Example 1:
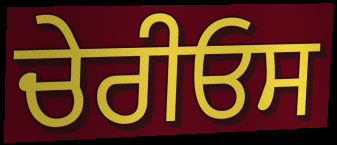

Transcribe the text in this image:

ਚੇਰੀਓਸ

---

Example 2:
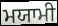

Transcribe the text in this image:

ਮਯਾਮੀ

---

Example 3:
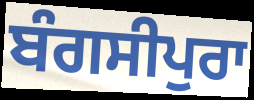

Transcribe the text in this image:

ਬੰਗਸੀਪੁਰਾ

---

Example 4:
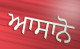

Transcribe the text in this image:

ਆਸਾਨੋ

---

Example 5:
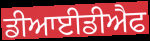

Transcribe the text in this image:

ਡੀਆਈਡੀਐਫ